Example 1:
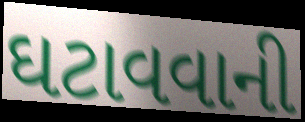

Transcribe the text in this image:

ઘટાવવાની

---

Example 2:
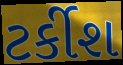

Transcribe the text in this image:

ટર્કીશ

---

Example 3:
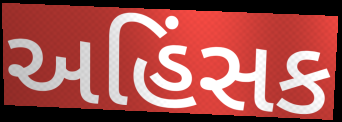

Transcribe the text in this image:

અહિંસક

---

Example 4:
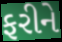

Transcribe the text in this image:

ફરીને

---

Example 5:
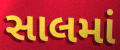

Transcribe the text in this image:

સાલમાં